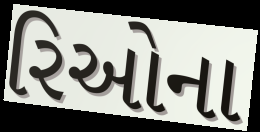
રિઓના